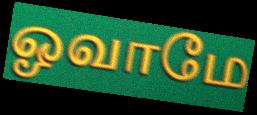
ஓவாமே